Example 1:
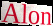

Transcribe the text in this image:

Alon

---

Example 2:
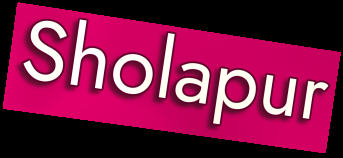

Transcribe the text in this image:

Sholapur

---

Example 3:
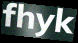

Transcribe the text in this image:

fhyk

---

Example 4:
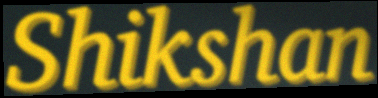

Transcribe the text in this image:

Shikshan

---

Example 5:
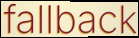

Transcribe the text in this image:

fallback